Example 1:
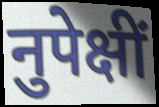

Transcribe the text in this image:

नुपेक्षीं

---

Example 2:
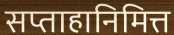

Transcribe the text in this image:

सप्ताहानिमित्त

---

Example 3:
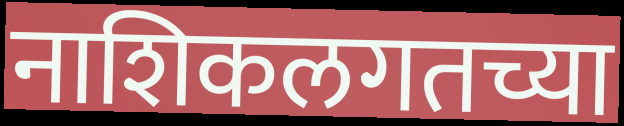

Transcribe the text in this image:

नाशिकलगतच्या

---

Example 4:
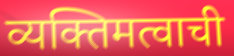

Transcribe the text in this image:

व्यक्तिमत्वाची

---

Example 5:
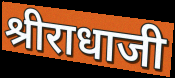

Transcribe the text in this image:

श्रीराधाजी